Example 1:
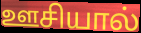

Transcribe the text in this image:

ஊசியால்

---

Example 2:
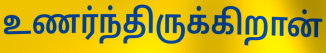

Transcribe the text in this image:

உணர்ந்திருக்கிறான்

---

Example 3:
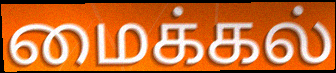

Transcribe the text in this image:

மைக்கல்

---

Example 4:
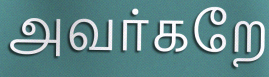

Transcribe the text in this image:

அவர்கறே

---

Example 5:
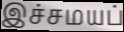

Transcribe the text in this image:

இச்சமயப்